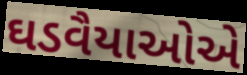
ઘડવૈયાઓએ